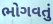
ભોગવતું